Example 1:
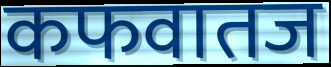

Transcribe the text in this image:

कफवातज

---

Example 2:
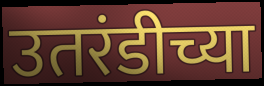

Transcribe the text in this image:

उतरंडीच्या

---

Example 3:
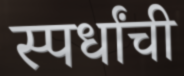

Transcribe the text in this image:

स्पर्धांची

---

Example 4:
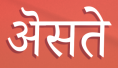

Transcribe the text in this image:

ऄसते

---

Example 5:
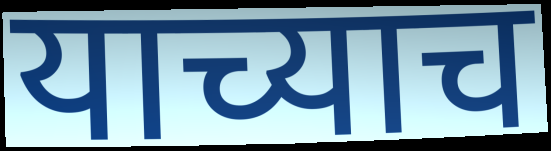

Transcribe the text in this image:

याच्याच